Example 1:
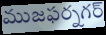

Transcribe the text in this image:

ముజఫర్నగర్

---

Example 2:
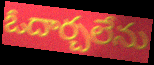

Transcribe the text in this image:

ఓదార్చలేను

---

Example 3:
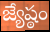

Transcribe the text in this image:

జ్యేష్ఠం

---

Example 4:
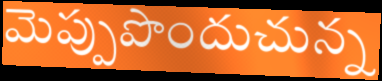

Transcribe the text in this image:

మెప్పుపొందుచున్న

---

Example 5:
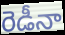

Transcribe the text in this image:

రెడీనా